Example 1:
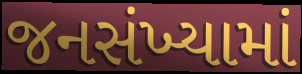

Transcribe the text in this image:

જનસંખ્યામાં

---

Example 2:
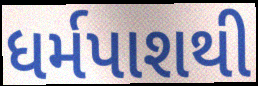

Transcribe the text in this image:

ધર્મપાશથી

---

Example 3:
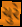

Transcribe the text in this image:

ચુરે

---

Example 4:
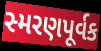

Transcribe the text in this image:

સ્મરણપૂર્વક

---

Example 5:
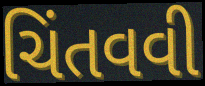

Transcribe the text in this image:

ચિંતવવી